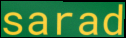
sarad